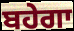
ਬਹੇਗਾ